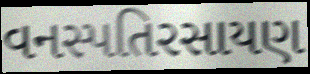
વનસ્પતિરસાયણ